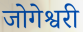
जोगेश्वरी